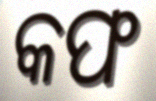
କଫ